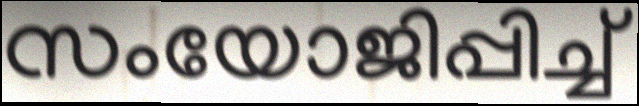
സംയോജിപ്പിച്ച്